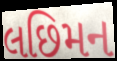
લછિમન